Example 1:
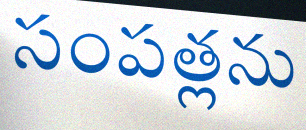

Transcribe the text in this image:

సంపత్లను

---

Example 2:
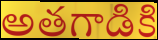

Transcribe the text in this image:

అతగాడికి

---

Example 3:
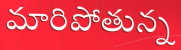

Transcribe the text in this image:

మారిపోతున్న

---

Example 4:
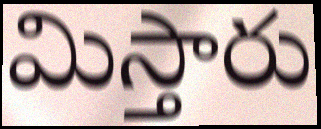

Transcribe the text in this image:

మిస్తారు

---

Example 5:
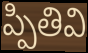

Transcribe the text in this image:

ప్పితివి